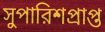
সুপারিশপ্রাপ্ত